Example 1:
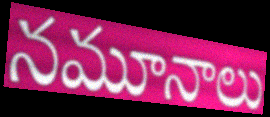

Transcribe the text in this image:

నమూనాలు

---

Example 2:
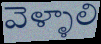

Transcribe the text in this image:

వెళ్ళాలి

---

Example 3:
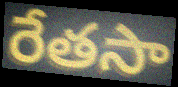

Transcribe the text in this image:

రేతసా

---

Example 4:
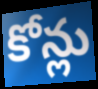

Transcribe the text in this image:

కోన్లు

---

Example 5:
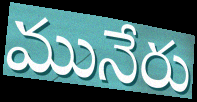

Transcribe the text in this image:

మునేరు